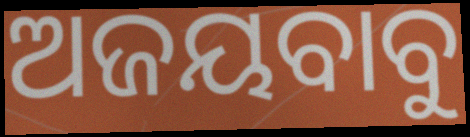
ଅଜୟବାବୁ